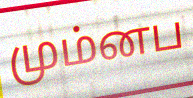
மும்னப